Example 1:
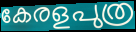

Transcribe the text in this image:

കേരളപുത്ര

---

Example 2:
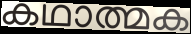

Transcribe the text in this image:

കഥാത്മക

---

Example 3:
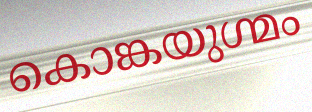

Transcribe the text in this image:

കൊങ്കയുഗ്മം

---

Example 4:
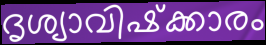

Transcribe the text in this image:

ദൃശ്യാവിഷ്‌ക്കാരം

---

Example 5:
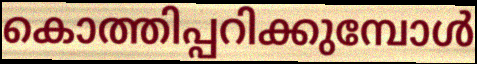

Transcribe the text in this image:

കൊത്തിപ്പറിക്കുമ്പോൾ